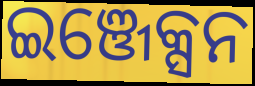
ଇଞ୍ଜେକ୍ସନ